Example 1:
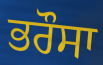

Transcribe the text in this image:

ਭਰੌਸਾ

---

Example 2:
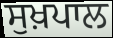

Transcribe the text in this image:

ਸੁਖ਼ਪਾਲ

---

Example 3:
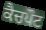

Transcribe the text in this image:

ਕੈਚਪੌਟ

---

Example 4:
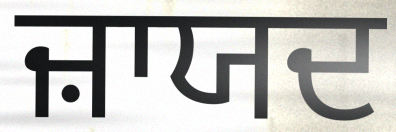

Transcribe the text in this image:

ਜ਼ਾਯਦ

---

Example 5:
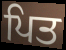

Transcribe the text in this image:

ਪਿਤ